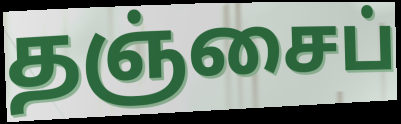
தஞ்சைப்